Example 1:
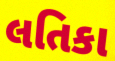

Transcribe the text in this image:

લતિકા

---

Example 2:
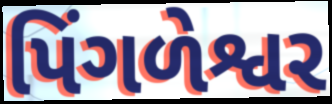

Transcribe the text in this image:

પિંગળેશ્વર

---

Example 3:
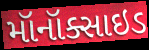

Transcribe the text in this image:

મૉનૉક્સાઇડ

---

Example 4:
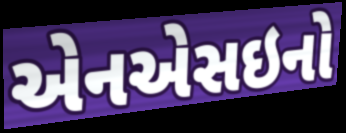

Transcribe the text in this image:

એનએસઇનો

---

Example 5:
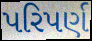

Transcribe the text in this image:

પરિપર્ણ